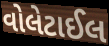
વોલેટાઈલ